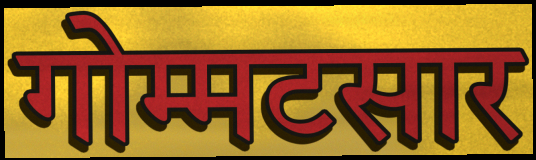
गोम्मटसार